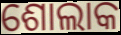
ଶୋଲାକ